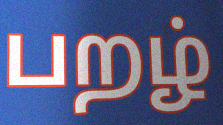
பறழ்